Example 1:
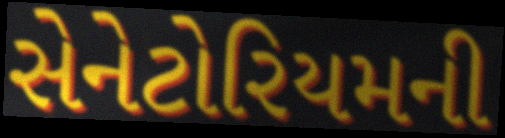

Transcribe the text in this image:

સેનેટોરિયમની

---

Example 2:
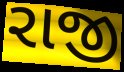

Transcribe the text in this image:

રાજી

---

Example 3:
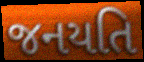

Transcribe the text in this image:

જનયતિ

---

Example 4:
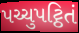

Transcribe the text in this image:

પચ્ચુપટ્ઠિતં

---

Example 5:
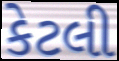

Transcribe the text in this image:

કેટલી